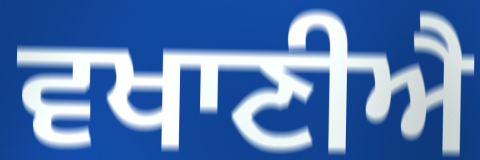
ਵਖਾਣੀਐ